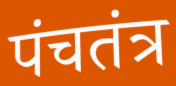
पंचतंत्र